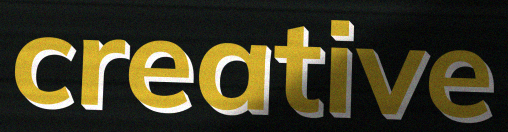
creative